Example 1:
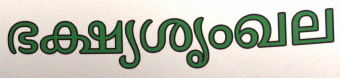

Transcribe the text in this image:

ഭക്ഷ്യശൃംഖല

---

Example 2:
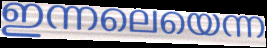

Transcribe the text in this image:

ഇന്നലെയെന്ന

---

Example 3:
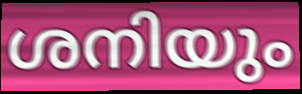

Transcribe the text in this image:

ശനിയും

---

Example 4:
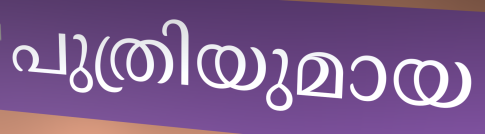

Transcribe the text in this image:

പുത്രിയുമായ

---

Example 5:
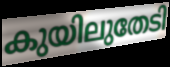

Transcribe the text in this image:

കുയിലുതേടി